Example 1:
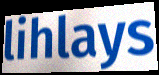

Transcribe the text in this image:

lihlays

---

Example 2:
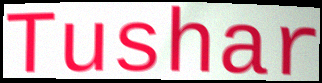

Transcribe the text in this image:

Tushar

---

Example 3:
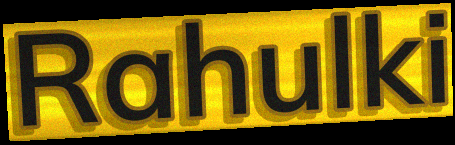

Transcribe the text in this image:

Rahulki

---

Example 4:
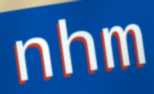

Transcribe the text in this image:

nhm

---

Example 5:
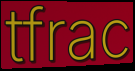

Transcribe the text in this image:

tfrac